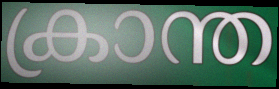
ക്രാന്ത